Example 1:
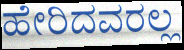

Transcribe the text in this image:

ಹೇರಿದವರಲ್ಲ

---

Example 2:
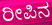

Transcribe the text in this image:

ರೀಪಿನ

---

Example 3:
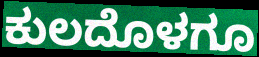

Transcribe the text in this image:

ಕುಲದೊಳಗೂ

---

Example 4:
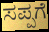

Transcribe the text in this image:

ಸಪ್ಪಗೆ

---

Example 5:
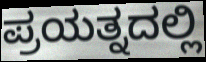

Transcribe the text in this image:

ಪ್ರಯತ್ನದಲ್ಲಿ